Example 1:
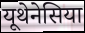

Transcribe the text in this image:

यूथेनेसिया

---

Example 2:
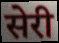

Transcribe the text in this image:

सेरी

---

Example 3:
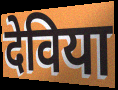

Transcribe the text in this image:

देविया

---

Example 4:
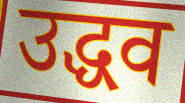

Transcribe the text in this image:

उद्धव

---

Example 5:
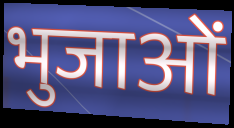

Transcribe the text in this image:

भुजाओं